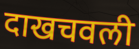
दाखचवली